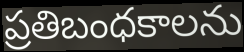
ప్రతిబంధకాలను